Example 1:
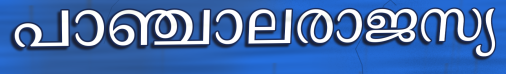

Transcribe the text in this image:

പാഞ്ചാലരാജസ്യ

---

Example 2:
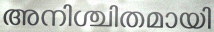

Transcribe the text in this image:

അനിശ്ചിതമായി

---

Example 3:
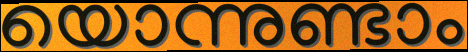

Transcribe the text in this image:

യൊന്നുണ്ടാം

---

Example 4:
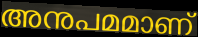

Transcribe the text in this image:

അനുപമമാണ്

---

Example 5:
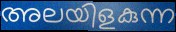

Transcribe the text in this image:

അലയിളകുന്ന